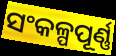
ସଂକଳ୍ପପୂର୍ଣ୍ଣ